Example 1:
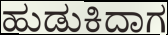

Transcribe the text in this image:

ಹುಡುಕಿದಾಗ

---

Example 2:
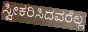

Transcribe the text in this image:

ಸ್ವೀಕರಿಸಿದವರೆಲ್ಲ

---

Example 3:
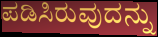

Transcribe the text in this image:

ಪಡಿಸಿರುವುದನ್ನು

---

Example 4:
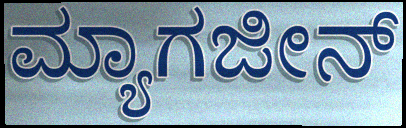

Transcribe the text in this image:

ಮ್ಯಾಗಜೀನ್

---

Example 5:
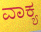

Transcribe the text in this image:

ವಾಕ್ಯ